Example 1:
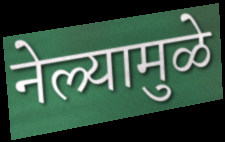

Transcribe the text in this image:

नेल्यामुळे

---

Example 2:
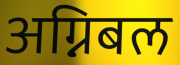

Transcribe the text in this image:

अग्निबल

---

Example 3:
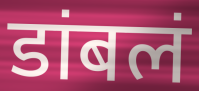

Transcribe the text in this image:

डांबलं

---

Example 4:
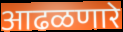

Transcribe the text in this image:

आढळणारे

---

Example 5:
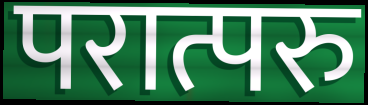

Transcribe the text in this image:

परात्परु